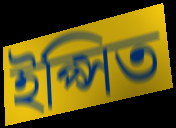
ইপ্সিত